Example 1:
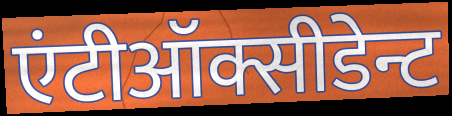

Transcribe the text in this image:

एंटीऑक्सीडेन्ट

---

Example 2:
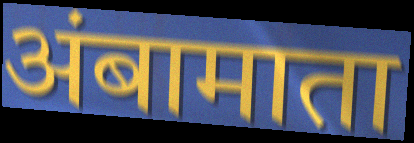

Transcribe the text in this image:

अंबामाता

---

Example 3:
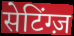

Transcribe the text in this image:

सेटिंग्ज़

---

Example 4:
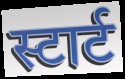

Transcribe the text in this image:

स्टार्ट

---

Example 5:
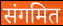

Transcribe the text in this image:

संगमित